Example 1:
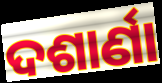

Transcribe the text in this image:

ଦଶାର୍ଣା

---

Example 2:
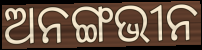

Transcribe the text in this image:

ଅନଙ୍ଗଭୀନ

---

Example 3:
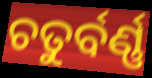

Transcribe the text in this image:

ଚତୁର୍ବର୍ଣ୍ଣ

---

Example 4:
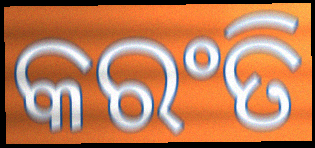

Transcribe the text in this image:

କରଂତି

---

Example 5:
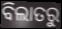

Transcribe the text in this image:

ବିଲାତରୁ